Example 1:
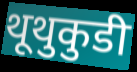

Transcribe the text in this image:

थूथुकुडी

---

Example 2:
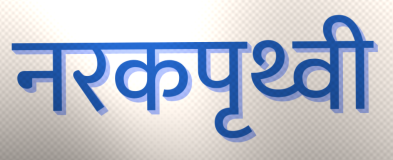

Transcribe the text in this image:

नरकपृथ्वी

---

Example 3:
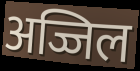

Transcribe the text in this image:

अज्जिल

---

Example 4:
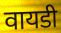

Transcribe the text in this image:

वायडी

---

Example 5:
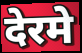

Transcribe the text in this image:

देरमे